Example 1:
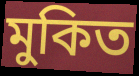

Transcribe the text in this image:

মুকিত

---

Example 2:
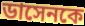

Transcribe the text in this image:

ডাসেনকে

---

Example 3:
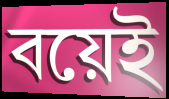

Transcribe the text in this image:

বয়েই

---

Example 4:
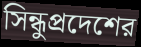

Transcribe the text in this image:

সিন্ধুপ্রদেশের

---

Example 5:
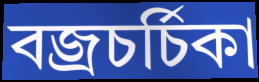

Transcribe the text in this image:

বজ্রচর্চিকা